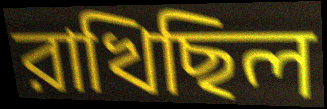
রাখিছিল